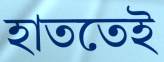
হাততেই